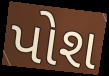
પોશ